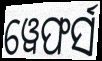
ୱେଫର୍ସ